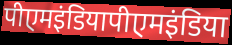
पीएमइंडियापीएमइंडिया